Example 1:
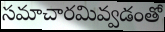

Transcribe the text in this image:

సమాచారమివ్వడంతో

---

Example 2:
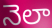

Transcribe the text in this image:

నెలా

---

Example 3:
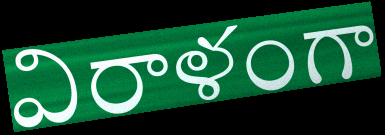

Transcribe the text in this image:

విరాళంగా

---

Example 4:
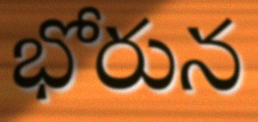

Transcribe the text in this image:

భోరున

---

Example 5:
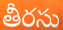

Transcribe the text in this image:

తీరసు